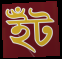
ইঁট